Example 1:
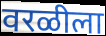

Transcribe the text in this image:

वरळीला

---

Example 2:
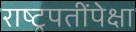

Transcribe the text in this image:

राष्ट्रपतींपेक्षा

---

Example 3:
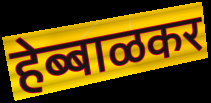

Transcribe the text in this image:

हेब्बाळकर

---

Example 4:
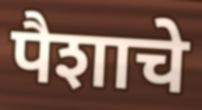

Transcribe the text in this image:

पैशाचे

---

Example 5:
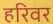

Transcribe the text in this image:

हरिवर